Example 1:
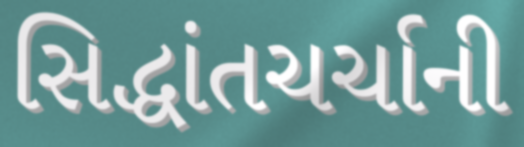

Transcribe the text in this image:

સિદ્ધાંતચર્ચાની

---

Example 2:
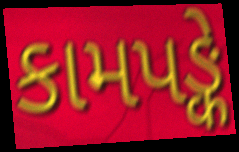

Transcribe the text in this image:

કામપઙ્કે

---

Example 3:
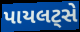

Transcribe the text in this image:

પાયલટ્સે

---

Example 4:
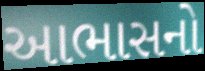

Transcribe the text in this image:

આભાસનો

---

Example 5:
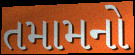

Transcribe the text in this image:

તમામનો